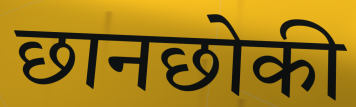
छानछोकी